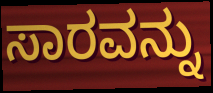
ಸಾರವನ್ನು